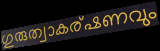
ഗുരുത്വാകര്ഷണവും